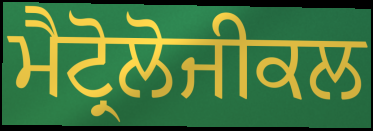
ਮੈਟ੍ਰੋਲੋਜੀਕਲ